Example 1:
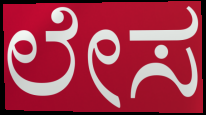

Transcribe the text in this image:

ಲೇಸ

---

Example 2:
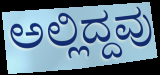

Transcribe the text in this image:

ಅಲ್ಲಿದ್ದವು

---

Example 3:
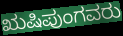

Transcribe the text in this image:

ಋಷಿಪುಂಗವರು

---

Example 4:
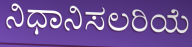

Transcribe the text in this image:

ನಿಧಾನಿಸಲರಿಯೆ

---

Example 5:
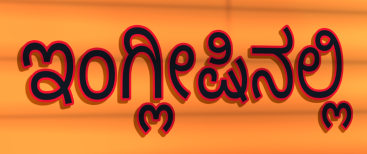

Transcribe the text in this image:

ಇಂಗ್ಲೀಷಿನಲ್ಲಿ